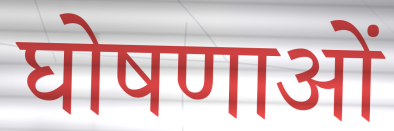
घोषणाओं